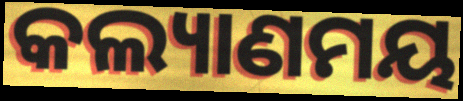
କଲ୍ୟାଣମୟ